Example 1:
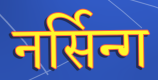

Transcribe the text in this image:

नर्सिन्ग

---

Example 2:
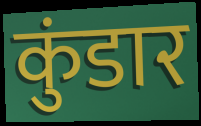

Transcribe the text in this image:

कुंडार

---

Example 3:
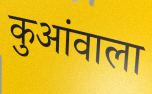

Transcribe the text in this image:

कुआंवाला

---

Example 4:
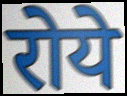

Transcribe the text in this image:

रोये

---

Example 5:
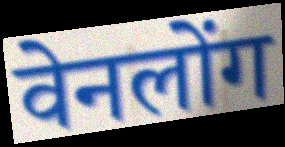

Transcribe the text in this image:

वेनलोंग